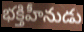
భక్తిహీనుడు